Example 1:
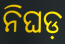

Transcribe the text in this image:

ନିଘଡ଼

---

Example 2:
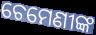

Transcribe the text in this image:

ଚେମେଣୀଙ୍କ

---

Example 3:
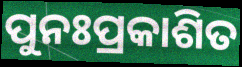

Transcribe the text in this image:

ପୁନଃପ୍ରକାଶିତ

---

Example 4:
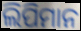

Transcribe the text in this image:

ଲିପିମାନ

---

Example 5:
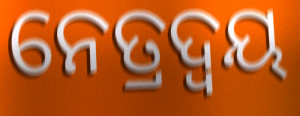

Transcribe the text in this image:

ନେତ୍ରଦ୍ୱୟ